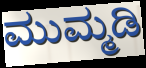
ಮುಮ್ಮಡಿ